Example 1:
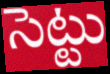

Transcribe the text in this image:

సెట్టు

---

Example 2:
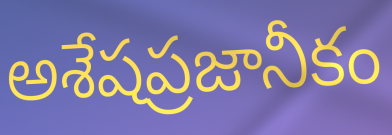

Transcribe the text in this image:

అశేషప్రజానీకం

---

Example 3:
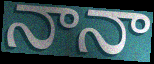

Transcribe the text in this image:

నానా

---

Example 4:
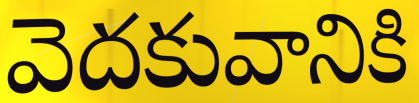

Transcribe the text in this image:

వెదకువానికి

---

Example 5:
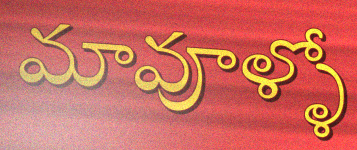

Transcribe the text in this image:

మావూళ్ళో